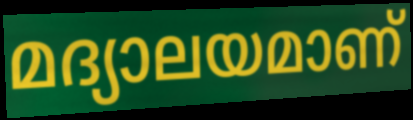
മദ്യാലയമാണ്